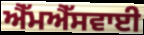
ਐੱਮਐੱਸਵਾਈ